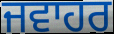
ਜਵਾਹਰ